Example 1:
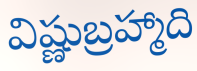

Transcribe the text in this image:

విష్ణుబ్రహ్మాది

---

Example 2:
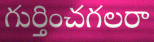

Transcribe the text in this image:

గుర్తించగలరా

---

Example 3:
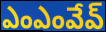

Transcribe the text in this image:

ఎంఎంవేవ్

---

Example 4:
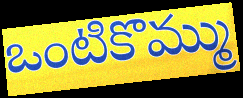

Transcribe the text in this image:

ఒంటికొమ్ము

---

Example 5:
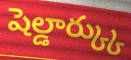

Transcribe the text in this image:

షెల్డార్క్కు